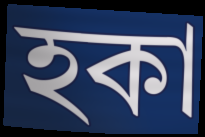
হকা